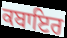
ਕਬਾਇਰ